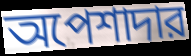
অপেশাদার